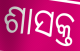
ଶାସକ୍ତ